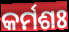
କର୍ମଶଃ